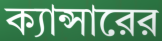
ক্যান্সারের